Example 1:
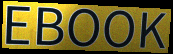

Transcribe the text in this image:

EBOOK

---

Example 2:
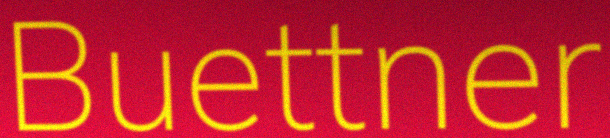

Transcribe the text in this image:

Buettner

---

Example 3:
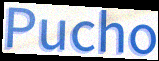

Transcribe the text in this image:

Pucho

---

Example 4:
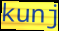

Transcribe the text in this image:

kunj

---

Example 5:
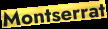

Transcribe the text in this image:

Montserrat